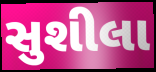
સુશીલા